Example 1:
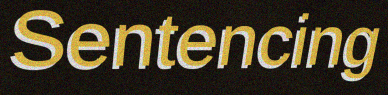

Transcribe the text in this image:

Sentencing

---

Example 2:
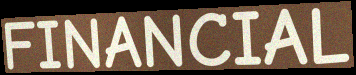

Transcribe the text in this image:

FINANCIAL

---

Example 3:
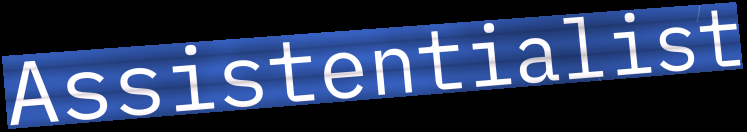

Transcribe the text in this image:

Assistentialist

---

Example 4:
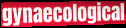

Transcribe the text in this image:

gynaecological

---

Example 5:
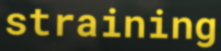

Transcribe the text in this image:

straining